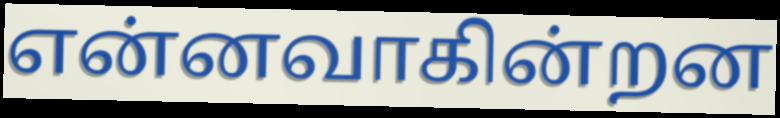
என்னவாகின்றன